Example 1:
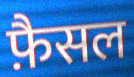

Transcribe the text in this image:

फ़ैसल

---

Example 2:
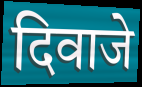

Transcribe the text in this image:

दिवाजे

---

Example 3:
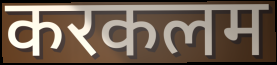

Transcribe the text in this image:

करकलम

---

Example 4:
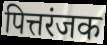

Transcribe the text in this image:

पित्तरंजक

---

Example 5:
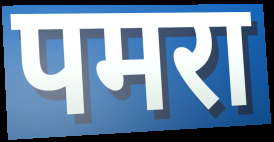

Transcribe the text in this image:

पमरा